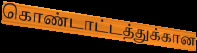
கொண்டாட்டத்துக்கான